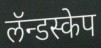
लॅन्डस्केप